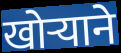
खोऱ्याने